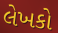
લેખકો